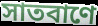
সাতবাণে